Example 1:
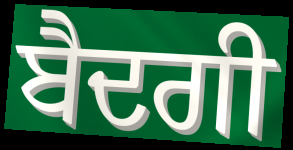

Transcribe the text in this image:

ਬੈਦਗੀ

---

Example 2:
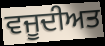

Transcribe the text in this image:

ਵਜੂਦੀਅਤ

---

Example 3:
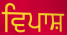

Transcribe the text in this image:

ਵਿਪਾਸ਼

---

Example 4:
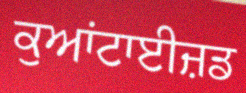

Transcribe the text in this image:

ਕੁਆਂਟਾਈਜ਼ਡ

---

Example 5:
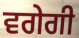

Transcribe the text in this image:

ਵਗੇਗੀ